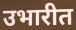
उभारीत